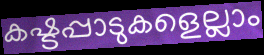
കഷ്ടപ്പാടുകളെല്ലാം